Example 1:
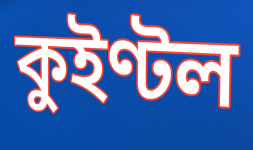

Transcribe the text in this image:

কুইণ্টল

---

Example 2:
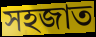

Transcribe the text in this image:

সহজাত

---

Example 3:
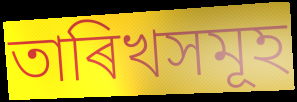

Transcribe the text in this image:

তাৰিখসমূহ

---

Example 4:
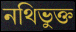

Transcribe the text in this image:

নথিভুক্ত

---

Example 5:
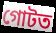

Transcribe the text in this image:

গোটত